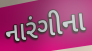
નારંગીના